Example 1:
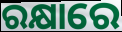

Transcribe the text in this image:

ରକ୍ଷାରେ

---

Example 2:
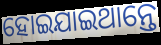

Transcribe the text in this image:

ହୋଇଯାଇଥାନ୍ତେ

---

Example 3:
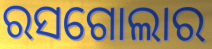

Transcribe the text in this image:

ରସଗୋଲାର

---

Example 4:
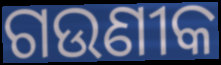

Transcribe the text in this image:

ଗଉଣୀକ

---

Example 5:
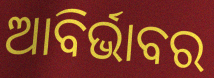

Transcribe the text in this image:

ଆବିର୍ଭାବର